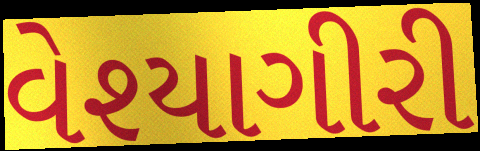
વેશ્યાગીરી